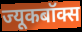
ज्यूकबॉक्स